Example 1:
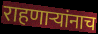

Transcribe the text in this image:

राहणाऱ्यांनाच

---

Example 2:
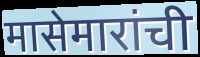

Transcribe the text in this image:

मासेमारांची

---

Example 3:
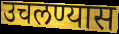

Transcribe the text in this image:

उचलण्यास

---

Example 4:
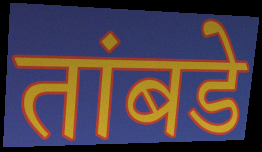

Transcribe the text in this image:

तांबडे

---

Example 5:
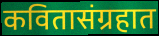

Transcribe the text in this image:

कवितासंग्रहात